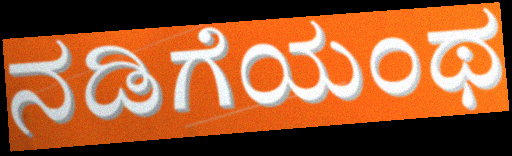
ನಡಿಗೆಯಂಥ